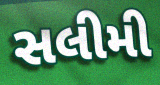
સલીમી